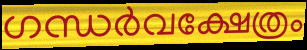
ഗന്ധർവക്ഷേത്രം